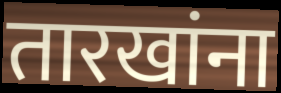
तारखांना